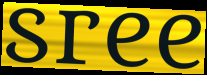
sree